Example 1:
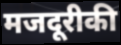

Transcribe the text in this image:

मजदूरीकी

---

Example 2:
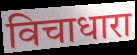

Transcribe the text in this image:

विचाधारा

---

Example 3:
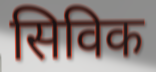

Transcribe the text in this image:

सिविक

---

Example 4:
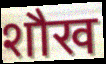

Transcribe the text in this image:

शौख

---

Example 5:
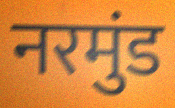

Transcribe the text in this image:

नरमुंड